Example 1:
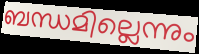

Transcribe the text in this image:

ബന്ധമില്ലെന്നും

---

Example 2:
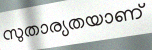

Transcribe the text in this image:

സുതാര്യതയാണ്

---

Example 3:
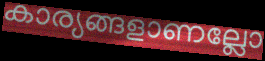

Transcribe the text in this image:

കാര്യങ്ങളാണല്ലോ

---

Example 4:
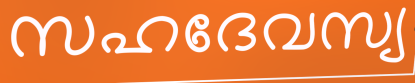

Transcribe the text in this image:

സഹദേവസ്യ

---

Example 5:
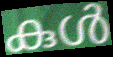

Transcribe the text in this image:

കുൾ